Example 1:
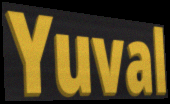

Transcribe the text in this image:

Yuval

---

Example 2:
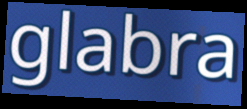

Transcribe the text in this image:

glabra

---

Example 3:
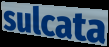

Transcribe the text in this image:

sulcata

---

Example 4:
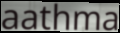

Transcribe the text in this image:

aathma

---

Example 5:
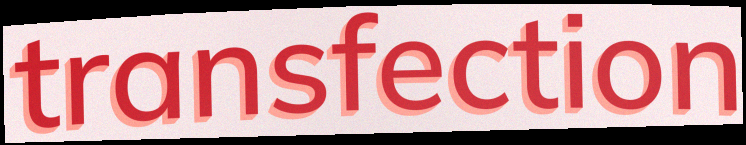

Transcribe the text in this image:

transfection